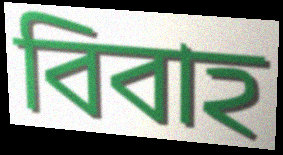
বিবাহ